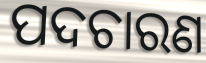
ପଦଚାରଣ